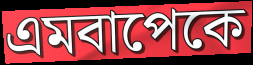
এমবাপেকে